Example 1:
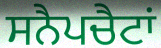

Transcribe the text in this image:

ਸਨੈਪਚੈਟਾਂ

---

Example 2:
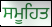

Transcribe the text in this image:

ਸਮੂਹਿਤ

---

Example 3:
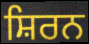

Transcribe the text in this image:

ਸ਼ਿਰਨ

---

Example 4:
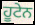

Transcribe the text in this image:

ਹੂਟੇਨ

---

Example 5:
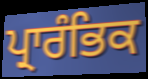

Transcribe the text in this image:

ਪ੍ਰਾਰੰਭਿਕ